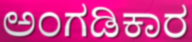
ಅಂಗಡಿಕಾರ